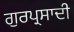
ਗੁਰਪ੍ਰਸਾਦੀ